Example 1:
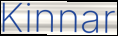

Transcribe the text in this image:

Kinnar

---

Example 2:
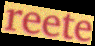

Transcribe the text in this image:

reete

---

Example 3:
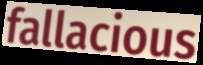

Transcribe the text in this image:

fallacious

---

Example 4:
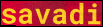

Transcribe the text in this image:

savadi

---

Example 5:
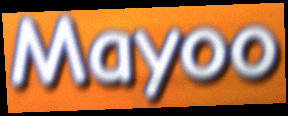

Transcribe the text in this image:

Mayoo